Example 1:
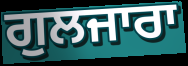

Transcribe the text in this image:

ਗੁਲਜਾਰਾ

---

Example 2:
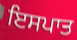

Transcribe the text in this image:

ਇਸਪਾਤ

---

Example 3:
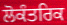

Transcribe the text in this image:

ਲੋਕੰਤਰਿਕ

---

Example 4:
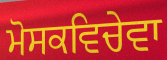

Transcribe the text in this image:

ਮੋਸਕਵਿਚੇਵਾ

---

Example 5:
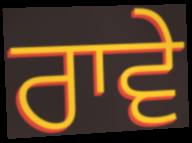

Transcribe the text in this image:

ਰਾਵੇ